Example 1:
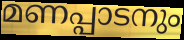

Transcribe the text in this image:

മണപ്പാടനും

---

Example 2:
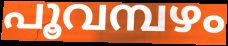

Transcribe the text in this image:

പൂവമ്പഴം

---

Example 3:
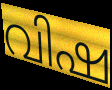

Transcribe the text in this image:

വിഷ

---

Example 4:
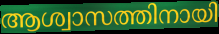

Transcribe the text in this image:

ആശ്വാസത്തിനായി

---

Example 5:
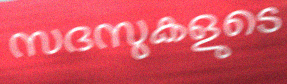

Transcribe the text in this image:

സദസുകളുടെ